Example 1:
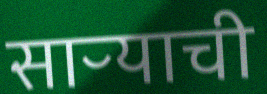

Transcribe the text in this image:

साऱ्याची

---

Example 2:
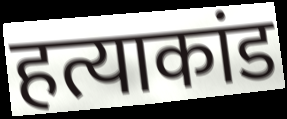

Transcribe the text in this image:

हत्याकांड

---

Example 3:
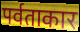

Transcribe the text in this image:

पर्वताकार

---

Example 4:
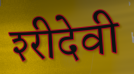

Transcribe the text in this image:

श्रीदेवी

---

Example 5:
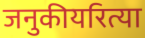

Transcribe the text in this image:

जनुकीयरित्या